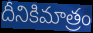
దీనికిమాత్రం